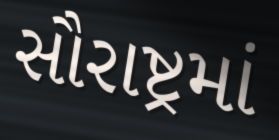
સૌરાષ્ટ્રમાં